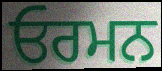
ਓਰਮਨ